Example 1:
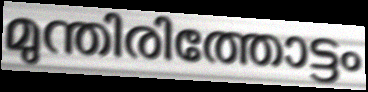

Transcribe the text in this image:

മുന്തിരിത്തോട്ടം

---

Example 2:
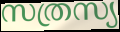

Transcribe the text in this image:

സത്രസ്യ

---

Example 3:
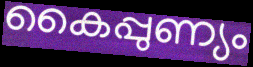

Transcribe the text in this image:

കൈപ്പുണ്യം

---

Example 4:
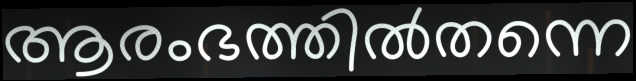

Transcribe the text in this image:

ആരംഭത്തിൽതന്നെ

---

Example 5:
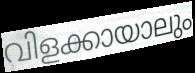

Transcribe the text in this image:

വിളക്കായാലും